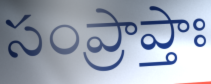
సంప్రాప్తాః